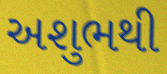
અશુભથી